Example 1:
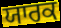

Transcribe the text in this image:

ਯਾਰਕ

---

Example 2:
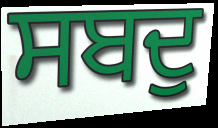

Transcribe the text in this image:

ਸਬਦੁ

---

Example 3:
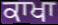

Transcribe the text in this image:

ਕਾਖਾ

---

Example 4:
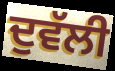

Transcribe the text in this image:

ਦੁਵੱਲੀ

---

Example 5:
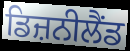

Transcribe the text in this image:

ਡਿਜ਼ਨੀਲੈਂਡ